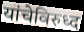
यांचेविरुध्द